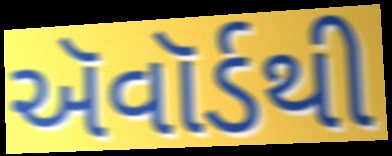
ઍવૉર્ડથી